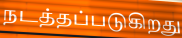
நடத்தப்படுகிறது